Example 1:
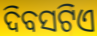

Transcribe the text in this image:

ଦିବସଟିଏ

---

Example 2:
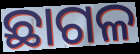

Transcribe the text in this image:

ଛାଗଳ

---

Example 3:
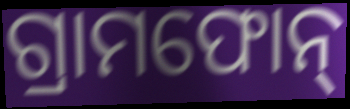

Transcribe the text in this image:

ଗ୍ରାମଫୋନ୍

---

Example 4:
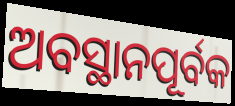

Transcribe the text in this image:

ଅବସ୍ଥାନପୂର୍ବକ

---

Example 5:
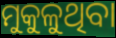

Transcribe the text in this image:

ମୁକୁଳୁଥିବା